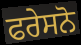
ਫਰੇਸਨੋ